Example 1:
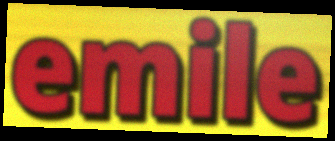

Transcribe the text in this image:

emile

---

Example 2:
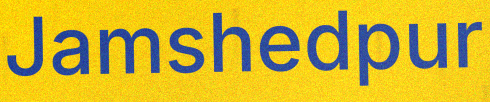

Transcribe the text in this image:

Jamshedpur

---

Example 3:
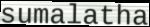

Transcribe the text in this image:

sumalatha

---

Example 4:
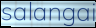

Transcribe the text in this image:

salangai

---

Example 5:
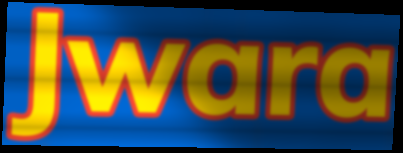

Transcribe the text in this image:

Jwara